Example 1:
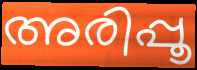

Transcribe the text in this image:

അരിപ്പൂ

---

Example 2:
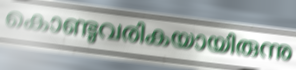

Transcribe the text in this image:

കൊണ്ടുവരികയായിരുന്നു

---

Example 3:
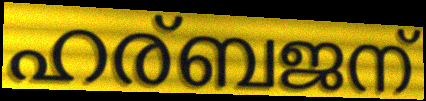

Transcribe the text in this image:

ഹര്ബജന്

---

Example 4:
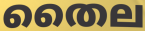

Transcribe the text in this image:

തൈല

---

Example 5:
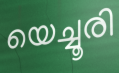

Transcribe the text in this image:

യെച്ചൂരി